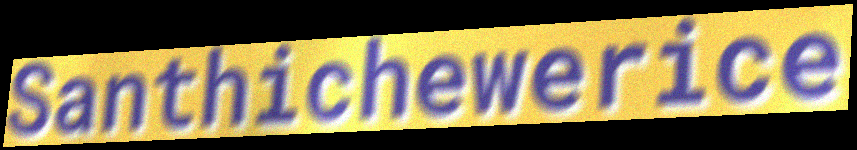
Santhichewerice